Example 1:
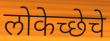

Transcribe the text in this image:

लोकेच्छेचे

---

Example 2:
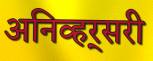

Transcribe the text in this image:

अनिव्हर्सरी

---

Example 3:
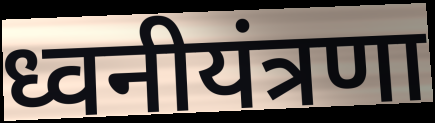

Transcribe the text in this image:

ध्वनीयंत्रणा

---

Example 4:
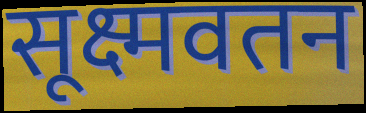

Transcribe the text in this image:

सूक्ष्मवतन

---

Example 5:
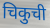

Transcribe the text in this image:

चिकुची